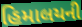
હિમાલયની